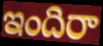
ఇందిరా